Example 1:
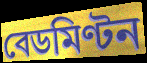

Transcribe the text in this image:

বেডমিণ্টন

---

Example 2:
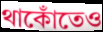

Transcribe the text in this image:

থাকোঁতেও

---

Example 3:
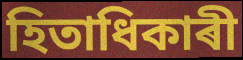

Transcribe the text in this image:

হিতাধিকাৰী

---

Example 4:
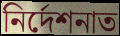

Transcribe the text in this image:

নিৰ্দেশনাত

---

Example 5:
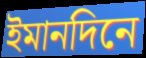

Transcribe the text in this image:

ইমানদিনে